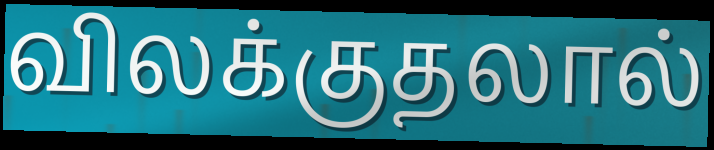
விலக்குதலால்